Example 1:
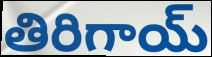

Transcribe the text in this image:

తిరిగాయ్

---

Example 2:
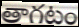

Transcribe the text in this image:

తాగటం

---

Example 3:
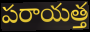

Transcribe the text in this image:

పరాయత్త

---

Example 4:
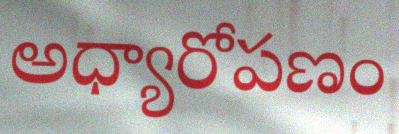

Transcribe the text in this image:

అధ్యారోపణం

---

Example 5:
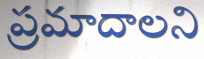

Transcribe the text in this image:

ప్రమాదాలని